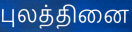
புலத்தினை